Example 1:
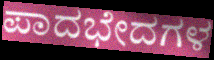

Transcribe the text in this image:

ಪಾದಭೇದಗಳ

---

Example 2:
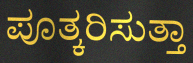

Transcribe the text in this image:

ಪೂತ್ಕರಿಸುತ್ತಾ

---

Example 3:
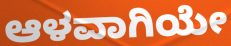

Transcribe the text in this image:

ಆಳವಾಗಿಯೇ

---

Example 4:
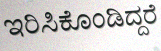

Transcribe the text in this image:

ಇರಿಸಿಕೊಂಡಿದ್ದರೆ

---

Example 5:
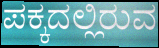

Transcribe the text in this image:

ಪಕ್ಕದಲ್ಲಿರುವ